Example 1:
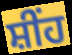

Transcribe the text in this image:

ਸ਼ੀਂਹ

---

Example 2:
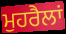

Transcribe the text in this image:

ਮੁਹਰੈਲਾਂ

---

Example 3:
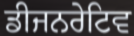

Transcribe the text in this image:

ਡੀਜਨਰੇਟਿਵ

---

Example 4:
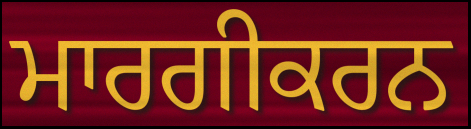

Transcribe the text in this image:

ਮਾਰਗੀਕਰਨ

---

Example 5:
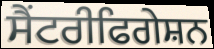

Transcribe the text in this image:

ਸੈਂਟਰੀਫਿਗੇਸ਼ਨ